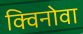
क्विनोवा